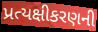
પ્રત્યક્ષીકરણની